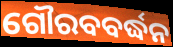
ଗୌରବବର୍ଦ୍ଧନ